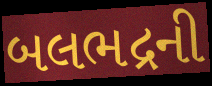
બલભદ્રની